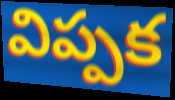
విప్పక